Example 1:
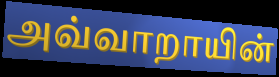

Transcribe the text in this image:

அவ்வாறாயின்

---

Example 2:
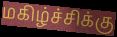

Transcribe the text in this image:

மகிழ்ச்சிக்கு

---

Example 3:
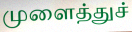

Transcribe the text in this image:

முளைத்துச்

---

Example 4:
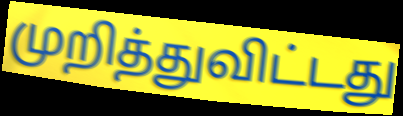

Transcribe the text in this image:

முறித்துவிட்டது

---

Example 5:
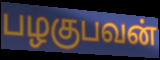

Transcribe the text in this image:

பழகுபவன்